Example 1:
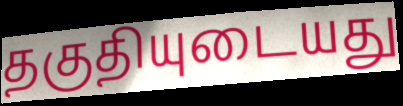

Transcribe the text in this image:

தகுதியுடையது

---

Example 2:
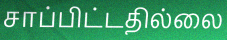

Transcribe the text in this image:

சாப்பிட்டதில்லை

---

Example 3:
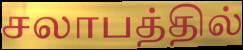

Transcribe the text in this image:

சலாபத்தில்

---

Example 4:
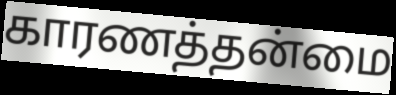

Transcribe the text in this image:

காரணத்தன்மை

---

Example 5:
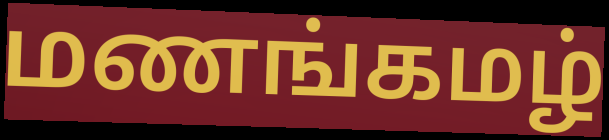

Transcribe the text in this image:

மணங்கமழ்